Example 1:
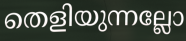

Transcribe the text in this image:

തെളിയുന്നല്ലോ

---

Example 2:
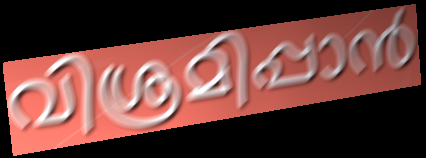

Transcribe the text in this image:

വിശ്രമിപ്പാൻ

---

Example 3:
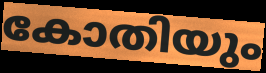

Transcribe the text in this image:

കോതിയും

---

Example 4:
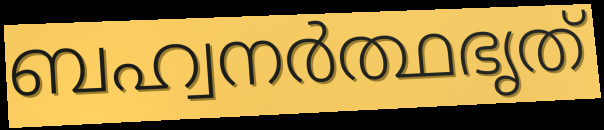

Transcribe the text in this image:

ബഹ്വനർത്ഥഭൃത്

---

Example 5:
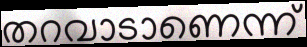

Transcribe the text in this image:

തറവാടാണെന്ന്